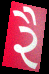
રૈ